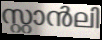
സ്റ്റാൻലി